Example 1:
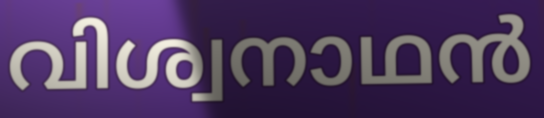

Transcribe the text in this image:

വിശ്വനാഥൻ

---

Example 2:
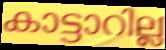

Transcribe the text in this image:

കാട്ടാറില്ല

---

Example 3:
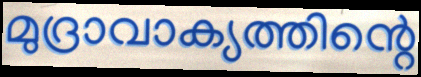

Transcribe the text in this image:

മുദ്രാവാക്യത്തിന്റെ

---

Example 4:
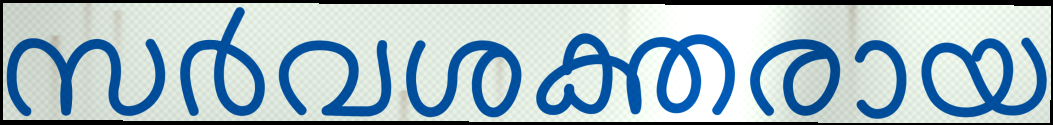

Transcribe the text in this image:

സർവശക്തരായ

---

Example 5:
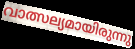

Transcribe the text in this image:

വാത്സല്യമായിരുന്നു